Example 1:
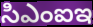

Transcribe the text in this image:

సిఎంఐఇ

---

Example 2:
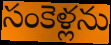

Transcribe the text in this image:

సంకెళ్లను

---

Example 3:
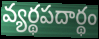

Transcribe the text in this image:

వ్యర్థపదార్థం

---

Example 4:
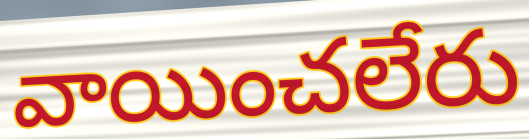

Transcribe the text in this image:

వాయించలేరు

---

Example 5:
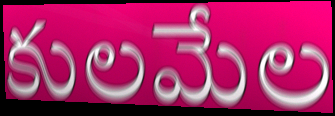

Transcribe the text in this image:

కులమేల